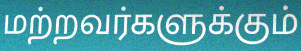
மற்றவர்களுக்கும்